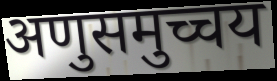
अणुसमुच्चय